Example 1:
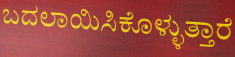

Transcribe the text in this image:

ಬದಲಾಯಿಸಿಕೊಳ್ಳುತ್ತಾರೆ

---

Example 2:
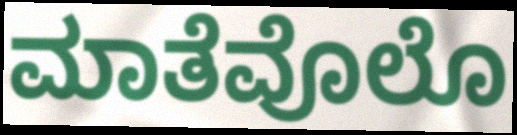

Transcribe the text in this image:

ಮಾತೆವೊಲೊ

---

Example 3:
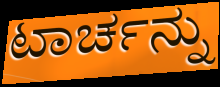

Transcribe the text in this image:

ಟಾರ್ಚನ್ನು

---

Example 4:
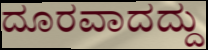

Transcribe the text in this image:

ದೂರವಾದದ್ದು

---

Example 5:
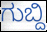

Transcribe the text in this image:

ಗುಬ್ದಿ